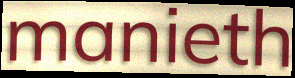
manieth